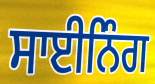
ਸਾਈਨਿੰਗ